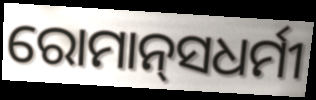
ରୋମାନ୍‍ସଧର୍ମୀ